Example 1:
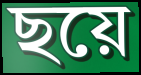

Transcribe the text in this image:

ছয়ে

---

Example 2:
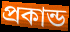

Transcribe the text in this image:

প্রকান্ড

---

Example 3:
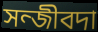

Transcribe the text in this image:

সন্জীবদা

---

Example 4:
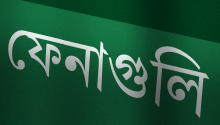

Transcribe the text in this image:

ফেনাগুলি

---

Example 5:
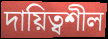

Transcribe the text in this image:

দায়িত্বশীল